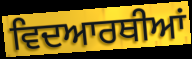
ਵਿਦਆਰਥੀਆਂ